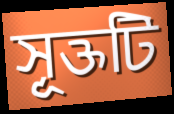
সূক্তটি